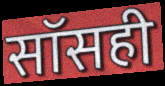
सॉसही